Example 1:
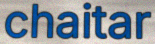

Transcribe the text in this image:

chaitar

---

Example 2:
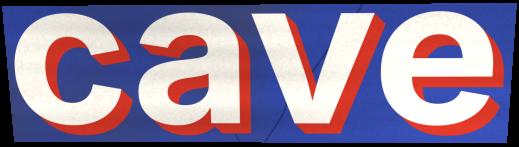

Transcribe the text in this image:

cave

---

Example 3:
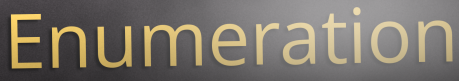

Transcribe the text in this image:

Enumeration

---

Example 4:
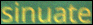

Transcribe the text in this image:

sinuate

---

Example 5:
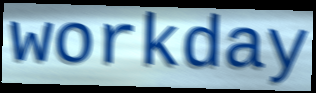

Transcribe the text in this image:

workday